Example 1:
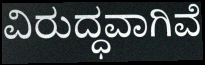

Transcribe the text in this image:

ವಿರುದ್ಧವಾಗಿವೆ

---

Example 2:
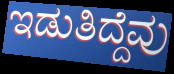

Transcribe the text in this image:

ಇಡುತಿದ್ದೆವು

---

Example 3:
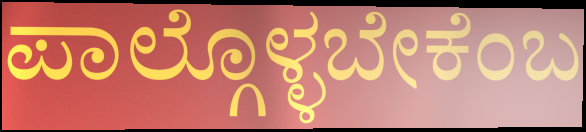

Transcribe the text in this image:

ಪಾಲ್ಗೊಳ್ಳಬೇಕೆಂಬ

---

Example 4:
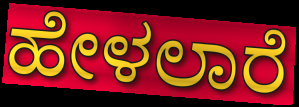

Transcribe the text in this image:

ಹೇಳಲಾರೆ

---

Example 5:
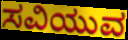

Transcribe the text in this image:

ಸವಿಯುವ